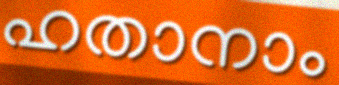
ഹതാനാം